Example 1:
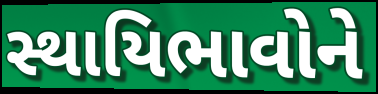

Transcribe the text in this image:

સ્થાયિભાવોને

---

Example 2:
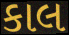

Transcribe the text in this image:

કાલ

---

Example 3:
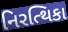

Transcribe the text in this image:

નિરત્થિકા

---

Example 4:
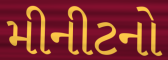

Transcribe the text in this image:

મીનીટનો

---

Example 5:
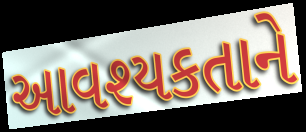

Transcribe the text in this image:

આવશ્યકતાને